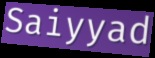
Saiyyad